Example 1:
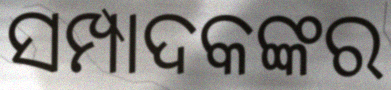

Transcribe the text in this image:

ସମ୍ପାଦକଙ୍କର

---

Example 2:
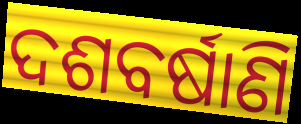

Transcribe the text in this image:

ଦଶବର୍ଷାଣି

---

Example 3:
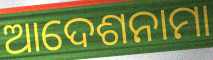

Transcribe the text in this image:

ଆଦେଶନାମା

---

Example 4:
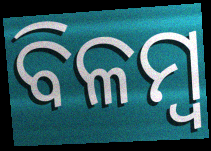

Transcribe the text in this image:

ବିଳମ୍ଵ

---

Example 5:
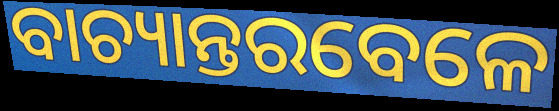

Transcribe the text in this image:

ବାଚ୍ୟାନ୍ତରବେଳେ